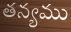
తన్యము